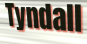
Tyndall